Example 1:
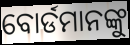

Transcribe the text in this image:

ବୋର୍ଡମାନଙ୍କୁ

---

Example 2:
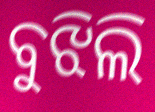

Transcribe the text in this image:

ବୁଝିଲି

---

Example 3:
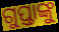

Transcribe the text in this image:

ଗୁପ୍ତାଙ୍କୁ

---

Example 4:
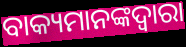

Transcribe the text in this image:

ବାକ୍ୟମାନଙ୍କଦ୍ୱାରା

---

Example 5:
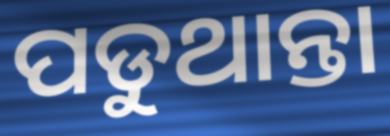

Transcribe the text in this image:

ପଡୁଥାନ୍ତା